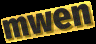
mwen